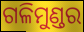
ଗଳିମୁଣ୍ଡର